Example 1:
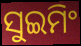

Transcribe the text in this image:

ସୁଇମିଂ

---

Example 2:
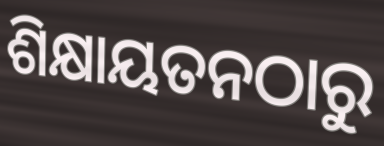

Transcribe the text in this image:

ଶିକ୍ଷାୟତନଠାରୁ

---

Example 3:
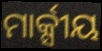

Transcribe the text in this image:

ମାର୍କ୍ସୀୟ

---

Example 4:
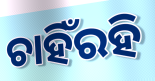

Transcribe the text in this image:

ଚାହିଁରହି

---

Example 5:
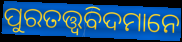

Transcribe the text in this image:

ପୁରତତ୍ତ୍ୱବିଦମାନେ